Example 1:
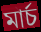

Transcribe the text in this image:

মার্চ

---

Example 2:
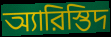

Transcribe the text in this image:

অ্যারিস্তিদ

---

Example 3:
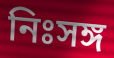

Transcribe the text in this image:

নিঃসঙ্গ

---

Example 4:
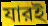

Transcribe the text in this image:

যারই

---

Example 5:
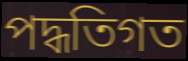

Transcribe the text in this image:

পদ্ধতিগত